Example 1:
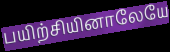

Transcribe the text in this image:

பயிற்சியினாலேயே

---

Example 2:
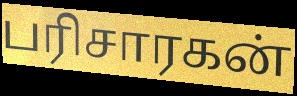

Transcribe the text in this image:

பரிசாரகன்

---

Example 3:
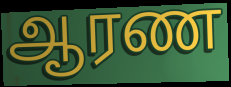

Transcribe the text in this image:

ஆரண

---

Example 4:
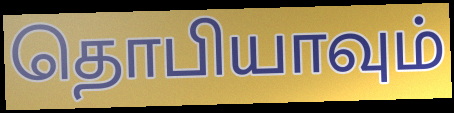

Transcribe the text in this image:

தொபியாவும்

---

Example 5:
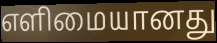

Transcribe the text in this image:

எளிமையானது